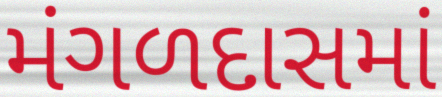
મંગળદાસમાં